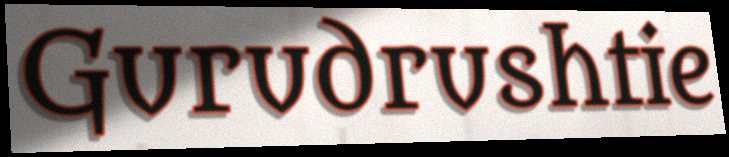
Gurudrushtie